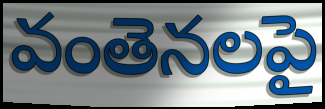
వంతెనలపై